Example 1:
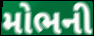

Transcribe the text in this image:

મોભની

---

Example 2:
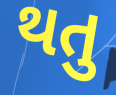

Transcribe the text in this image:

થતુ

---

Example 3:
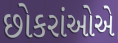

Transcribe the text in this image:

છોકરાંઓએ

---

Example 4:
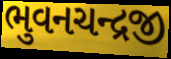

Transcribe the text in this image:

ભુવનચન્દ્રજી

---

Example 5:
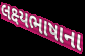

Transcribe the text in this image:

લક્ષ્યભાષાના